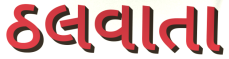
ઠલવાતા